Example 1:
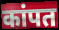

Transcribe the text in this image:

कांपत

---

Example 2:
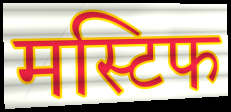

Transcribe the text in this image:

मस्टिफ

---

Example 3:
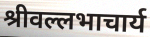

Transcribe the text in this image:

श्रीवल्लभाचार्य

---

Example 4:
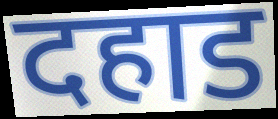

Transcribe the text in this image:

दहाड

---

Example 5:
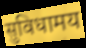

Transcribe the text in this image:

सुविधामय